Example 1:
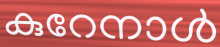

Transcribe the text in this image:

കുറേനാൾ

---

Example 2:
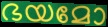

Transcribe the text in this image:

ഭയമോ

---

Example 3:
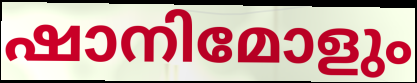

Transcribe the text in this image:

ഷാനിമോളും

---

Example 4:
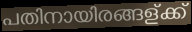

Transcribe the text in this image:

പതിനായിരങ്ങള്ക്ക്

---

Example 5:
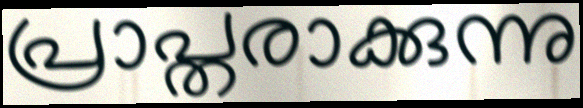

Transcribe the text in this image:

പ്രാപ്തരാക്കുന്നു